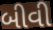
બીવી